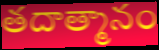
తదాత్మానం